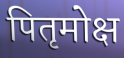
पितृमोक्ष